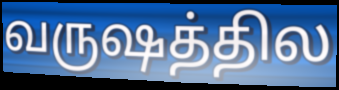
வருஷத்தில